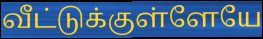
வீட்டுக்குள்ளேயே